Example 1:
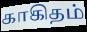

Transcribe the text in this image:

காகிதம்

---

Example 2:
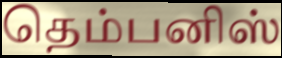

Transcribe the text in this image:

தெம்பனிஸ்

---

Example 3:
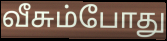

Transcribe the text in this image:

வீசும்போது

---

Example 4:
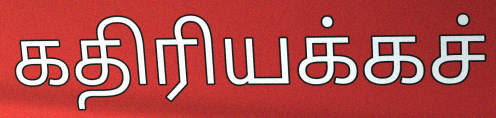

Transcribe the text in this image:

கதிரியக்கச்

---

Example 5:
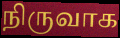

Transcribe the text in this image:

நிருவாக